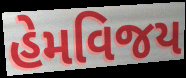
હેમવિજય